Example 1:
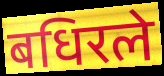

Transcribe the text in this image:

बधिरले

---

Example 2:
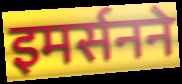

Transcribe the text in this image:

इमर्सनने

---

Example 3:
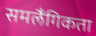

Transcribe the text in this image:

समलैंगिकता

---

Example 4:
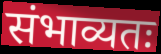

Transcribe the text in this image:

संभाव्यतः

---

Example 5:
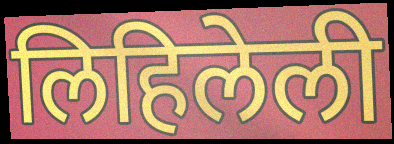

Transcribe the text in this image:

लिहिलेली